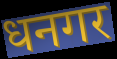
धनगर